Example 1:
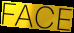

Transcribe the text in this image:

FACE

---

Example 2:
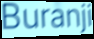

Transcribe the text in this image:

Buranji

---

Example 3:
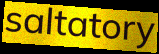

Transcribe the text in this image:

saltatory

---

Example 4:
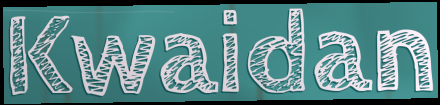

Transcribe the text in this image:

Kwaidan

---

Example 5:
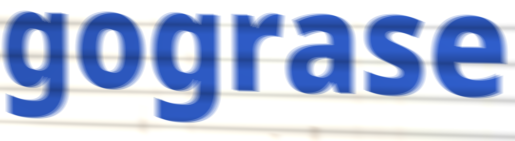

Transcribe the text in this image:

gograse